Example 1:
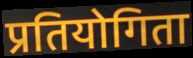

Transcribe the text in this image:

प्रतियोगिता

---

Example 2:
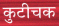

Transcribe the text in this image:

कुटीचक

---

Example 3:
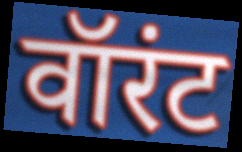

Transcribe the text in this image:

वॉरंट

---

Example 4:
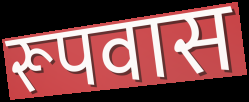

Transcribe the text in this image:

रूपवास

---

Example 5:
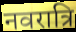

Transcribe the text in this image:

नवरात्रि